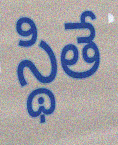
స్థితే